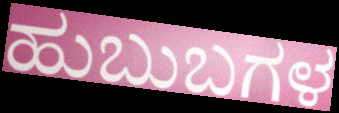
ಹುಬುಬಗಳ